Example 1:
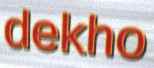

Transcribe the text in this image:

dekho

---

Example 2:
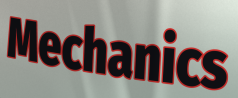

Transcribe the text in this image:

Mechanics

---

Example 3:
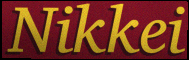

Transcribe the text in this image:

Nikkei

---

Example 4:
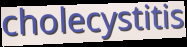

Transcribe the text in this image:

cholecystitis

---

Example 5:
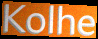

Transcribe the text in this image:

Kolhe